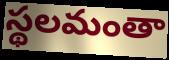
స్థలమంతా